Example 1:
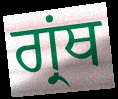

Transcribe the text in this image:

ਗ੍ਰਂਥ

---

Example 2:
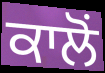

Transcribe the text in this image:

ਕਾਲੋਂ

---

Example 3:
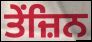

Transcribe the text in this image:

ਤੇਂਜ਼ਿਨ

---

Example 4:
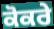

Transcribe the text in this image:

ਕੋਕਰੇ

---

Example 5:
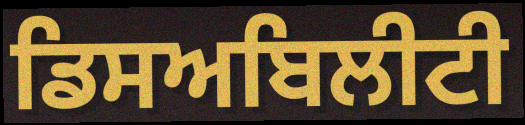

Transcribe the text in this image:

ਡਿਸਅਬਿਲੀਟੀ